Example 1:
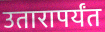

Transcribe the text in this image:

उतारापर्यंत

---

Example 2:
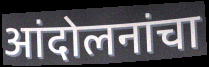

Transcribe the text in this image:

आंदोलनांचा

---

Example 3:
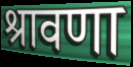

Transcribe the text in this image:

श्रावणा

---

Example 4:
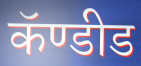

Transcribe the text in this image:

कॅण्डीड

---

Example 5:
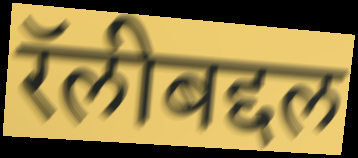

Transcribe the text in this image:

रॅलीबद्दल